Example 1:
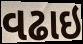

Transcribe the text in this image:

વઢાઇ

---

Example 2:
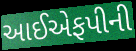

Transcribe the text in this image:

આઈએફપીની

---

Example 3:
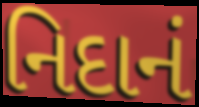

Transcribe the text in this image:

નિદાનં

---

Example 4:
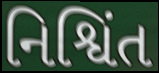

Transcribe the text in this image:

નિશ્વિંત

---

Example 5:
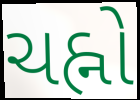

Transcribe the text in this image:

ચહ્નો